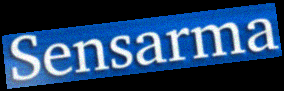
Sensarma